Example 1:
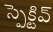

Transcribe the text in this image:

స్పెక్టివ్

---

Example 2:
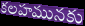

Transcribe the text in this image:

కలహమునకు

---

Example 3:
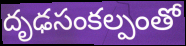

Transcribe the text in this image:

దృఢసంకల్పంతో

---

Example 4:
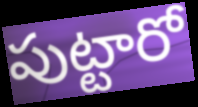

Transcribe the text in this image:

పుట్టారో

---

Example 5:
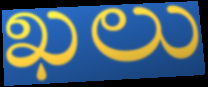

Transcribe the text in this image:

ఖలు